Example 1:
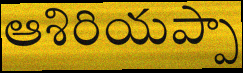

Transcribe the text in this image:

ఆశిరియప్పా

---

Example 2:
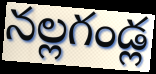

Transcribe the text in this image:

నల్లగండ్ల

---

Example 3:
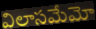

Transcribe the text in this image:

విలాసమేమో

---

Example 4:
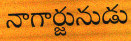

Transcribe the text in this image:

నాగార్జునుడు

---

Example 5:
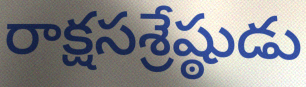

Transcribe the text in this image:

రాక్షసశ్రేష్ఠుడు